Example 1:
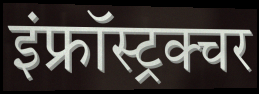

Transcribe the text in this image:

इंफ्रॉस्ट्रक्चर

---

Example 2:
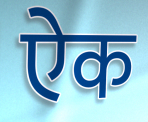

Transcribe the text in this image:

ऐक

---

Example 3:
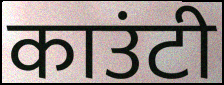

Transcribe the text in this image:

काउंटी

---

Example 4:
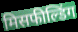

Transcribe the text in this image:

मिसफील्डिंग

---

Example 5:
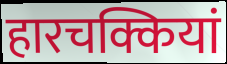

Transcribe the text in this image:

हारचक्कियां